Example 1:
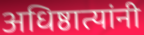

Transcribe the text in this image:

अधिष्ठात्यांनी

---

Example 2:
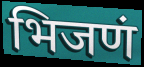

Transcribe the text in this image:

भिजणं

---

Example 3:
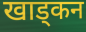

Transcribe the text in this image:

खाड्कन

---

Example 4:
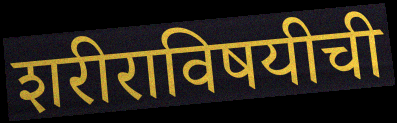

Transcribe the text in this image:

शरीराविषयीची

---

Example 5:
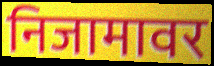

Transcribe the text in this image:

निजामावर